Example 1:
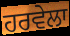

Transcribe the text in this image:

ਹਰਵੇਲਾ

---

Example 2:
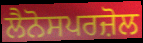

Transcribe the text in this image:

ਲੈਨੋਸਪਰਜ਼ੋਲ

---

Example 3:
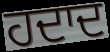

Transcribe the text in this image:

ਹਦਾਦ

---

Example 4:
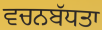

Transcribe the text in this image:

ਵਚਨਬੱਧਤਾ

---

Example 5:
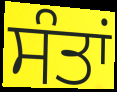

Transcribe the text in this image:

ਸੰਤਾਂ